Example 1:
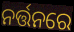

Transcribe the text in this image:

ନର୍ତ୍ତନରେ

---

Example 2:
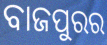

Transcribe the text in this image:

ବାଜପୁରର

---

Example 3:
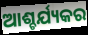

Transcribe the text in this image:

ଆଶ୍ଚର୍ଯ୍ୟକର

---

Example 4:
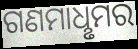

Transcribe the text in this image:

ଗଣମାଧୢମର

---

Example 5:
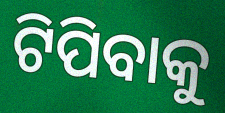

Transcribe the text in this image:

ଟିପିବାକୁ